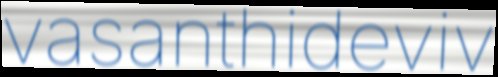
vasanthideviv